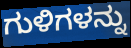
ಗುಳಿಗಳನ್ನು